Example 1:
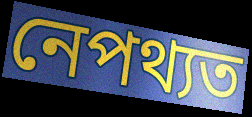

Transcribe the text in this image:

নেপথ্যত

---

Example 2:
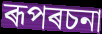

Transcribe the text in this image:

ৰূপৰচনা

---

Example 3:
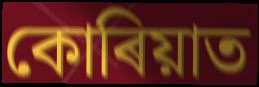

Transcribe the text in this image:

কোৰিয়াত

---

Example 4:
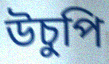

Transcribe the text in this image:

উচুপি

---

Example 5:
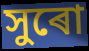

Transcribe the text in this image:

সুৰো